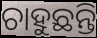
ଚାହୁଛନ୍ତି